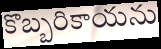
కొబ్బరికాయను